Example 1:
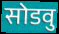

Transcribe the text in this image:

सोडवु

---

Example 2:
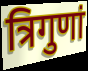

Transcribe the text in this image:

त्रिगुणां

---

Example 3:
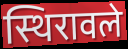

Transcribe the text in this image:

स्थिरावले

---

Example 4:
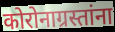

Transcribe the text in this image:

कोरोनाग्रस्तांना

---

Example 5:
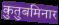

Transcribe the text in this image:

कुतुबमिनार